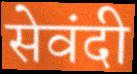
सेवंदी